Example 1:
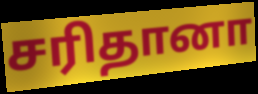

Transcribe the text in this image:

சரிதானா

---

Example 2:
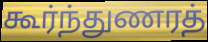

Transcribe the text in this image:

கூர்ந்துணரத்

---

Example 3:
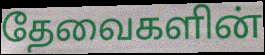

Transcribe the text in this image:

தேவைகளின்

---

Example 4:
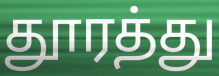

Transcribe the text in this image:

தூரத்து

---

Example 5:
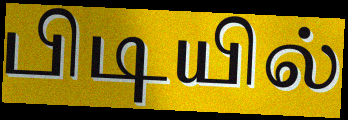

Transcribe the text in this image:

பிடியில்